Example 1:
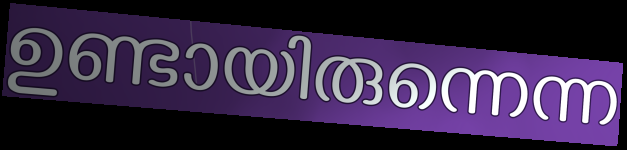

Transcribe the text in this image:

ഉണ്ടായിരുന്നെന്ന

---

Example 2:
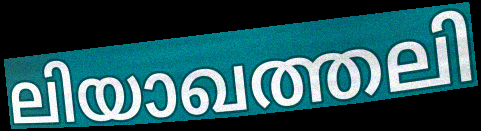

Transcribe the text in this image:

ലിയാഖത്തലി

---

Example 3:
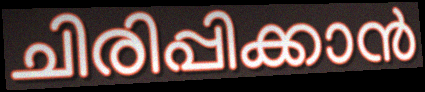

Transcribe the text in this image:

ചിരിപ്പിക്കാൻ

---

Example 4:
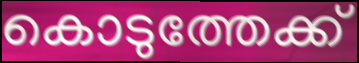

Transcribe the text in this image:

കൊടുത്തേക്ക്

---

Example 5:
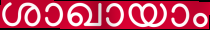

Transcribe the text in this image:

ശാഖായാം